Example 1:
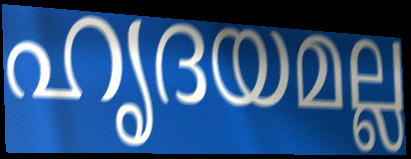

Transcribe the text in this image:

ഹൃദയമല്ല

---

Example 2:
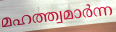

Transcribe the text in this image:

മഹത്ത്വമാർന്ന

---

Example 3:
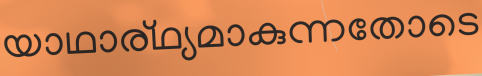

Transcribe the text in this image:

യാഥാര്ഥ്യമാകുന്നതോടെ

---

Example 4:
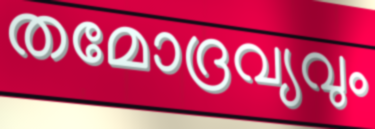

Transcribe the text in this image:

തമോദ്രവ്യവും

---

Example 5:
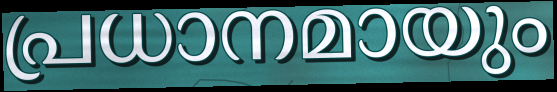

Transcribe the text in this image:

പ്രധാനമായും